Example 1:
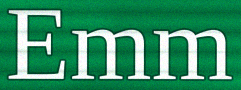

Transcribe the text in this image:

Emm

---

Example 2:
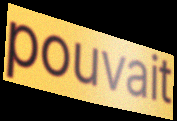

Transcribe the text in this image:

pouvait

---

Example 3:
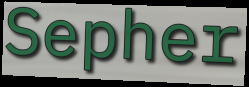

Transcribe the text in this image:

Sepher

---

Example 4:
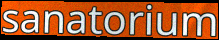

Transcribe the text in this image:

sanatorium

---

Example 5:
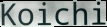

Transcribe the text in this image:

Koichi